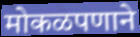
मोकळपणाने